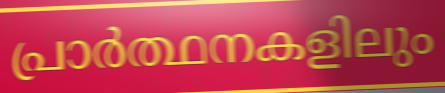
പ്രാർത്ഥനകളിലും